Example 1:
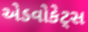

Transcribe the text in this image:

એડવોકેટ્સ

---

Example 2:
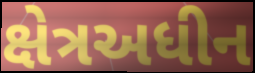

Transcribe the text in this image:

ક્ષેત્રઅધીન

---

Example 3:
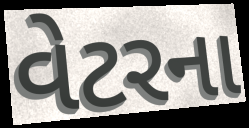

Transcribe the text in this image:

વેટરના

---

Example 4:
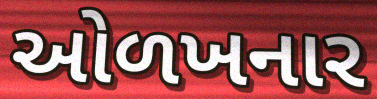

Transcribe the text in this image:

ઓળખનાર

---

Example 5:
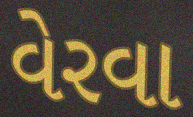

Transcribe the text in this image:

વેરવા